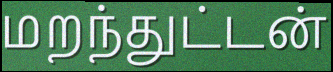
மறந்துட்டன்